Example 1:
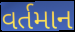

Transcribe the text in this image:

વર્તમાન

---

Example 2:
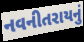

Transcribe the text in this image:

નવનીતરાયનું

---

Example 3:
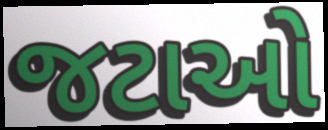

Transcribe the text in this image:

જટાઓ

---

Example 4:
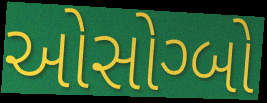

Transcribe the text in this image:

ઓસોગ્બો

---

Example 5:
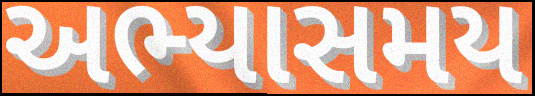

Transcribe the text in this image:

અભ્યાસમય